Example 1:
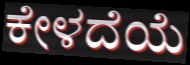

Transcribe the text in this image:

ಕೇಳದೆಯೆ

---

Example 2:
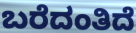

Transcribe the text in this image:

ಬರೆದಂತಿದೆ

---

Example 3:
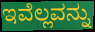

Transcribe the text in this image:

ಇವೆಲ್ಲವನ್ನು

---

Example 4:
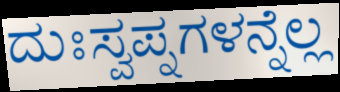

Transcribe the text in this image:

ದುಃಸ್ವಪ್ನಗಳನ್ನೆಲ್ಲ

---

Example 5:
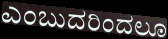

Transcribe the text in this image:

ಎಂಬುದರಿಂದಲೂ